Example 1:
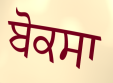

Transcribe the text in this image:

ਬੋਕਸਾ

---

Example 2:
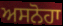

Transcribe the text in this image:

ਅਸਨੋਹਾ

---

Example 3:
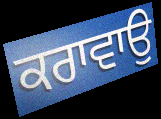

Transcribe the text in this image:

ਕਰਾਵਾਉ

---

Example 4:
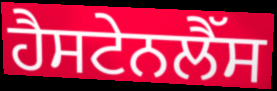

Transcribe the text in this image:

ਹੈਸਟੇਨਲੈੱਸ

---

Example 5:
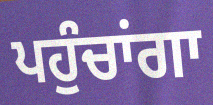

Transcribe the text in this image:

ਪਹੁੰਚਾਂਗਾ